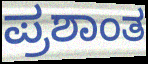
ಪ್ರಶಾಂತ